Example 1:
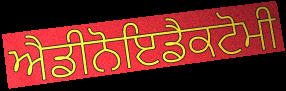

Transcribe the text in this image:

ਐਡੀਨੋਇਡੈਕਟੋਮੀ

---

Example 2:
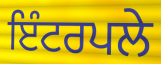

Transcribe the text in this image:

ਇੰਟਰਪਲੇ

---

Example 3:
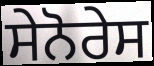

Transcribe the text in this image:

ਸੇਨੋਰੇਸ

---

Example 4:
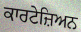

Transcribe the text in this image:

ਕਾਰਟੇਜ਼ਿਅਨ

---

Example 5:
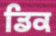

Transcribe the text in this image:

ਡਿਕ